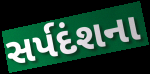
સર્પદંશના